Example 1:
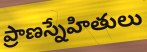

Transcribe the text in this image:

ప్రాణస్నేహితులు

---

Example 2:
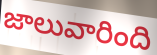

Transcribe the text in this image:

జాలువారింది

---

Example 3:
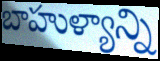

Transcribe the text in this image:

బాహుళ్యాన్ని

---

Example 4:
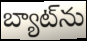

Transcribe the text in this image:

బ్యాట్‌ను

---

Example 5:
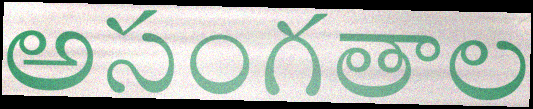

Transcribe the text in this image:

అసంగతాల